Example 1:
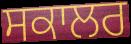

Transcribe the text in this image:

ਸਕਾਲਰ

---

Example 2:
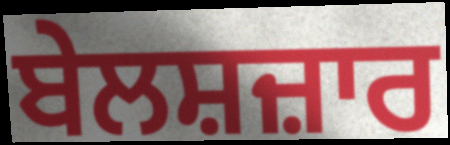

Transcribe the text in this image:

ਬੇਲਸ਼ਜ਼ਾਰ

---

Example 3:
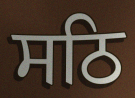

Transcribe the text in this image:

ਸਠਿ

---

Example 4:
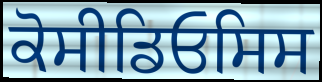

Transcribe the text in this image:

ਕੋਸੀਡਿਓਸਿਸ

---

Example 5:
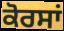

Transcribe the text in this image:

ਕੋਰਸਾਂ